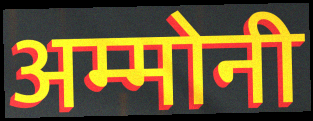
अम्मोनी